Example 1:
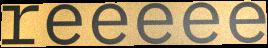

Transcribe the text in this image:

reeeee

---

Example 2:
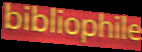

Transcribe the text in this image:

bibliophile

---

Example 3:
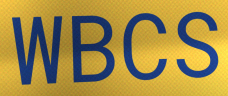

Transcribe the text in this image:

WBCS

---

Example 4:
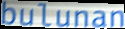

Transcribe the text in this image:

bulunan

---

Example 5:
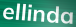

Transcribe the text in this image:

ellinda